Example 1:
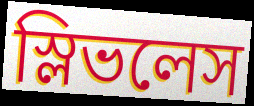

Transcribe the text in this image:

স্লিভলেস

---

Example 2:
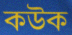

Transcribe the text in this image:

কউক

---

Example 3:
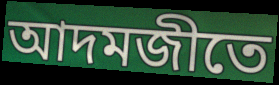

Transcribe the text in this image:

আদমজীতে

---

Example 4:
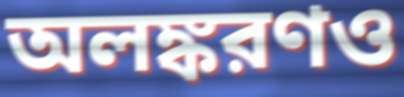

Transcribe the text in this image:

অলঙ্করণও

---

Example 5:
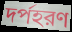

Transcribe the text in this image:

দর্পহরণ